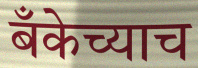
बँकेच्याच